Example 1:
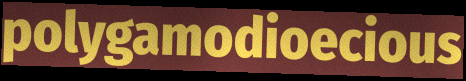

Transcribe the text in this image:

polygamodioecious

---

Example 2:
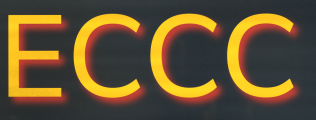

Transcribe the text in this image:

ECCC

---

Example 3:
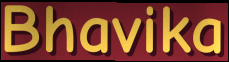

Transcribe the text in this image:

Bhavika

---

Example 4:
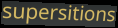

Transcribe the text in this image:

supersitions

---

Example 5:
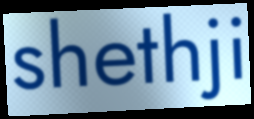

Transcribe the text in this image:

shethji